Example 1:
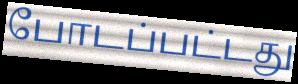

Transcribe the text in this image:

போடப்பட்டது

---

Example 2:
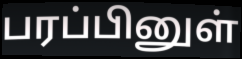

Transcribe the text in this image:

பரப்பினுள்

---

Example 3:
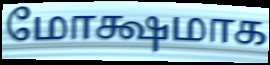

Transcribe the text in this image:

மோக்ஷமாக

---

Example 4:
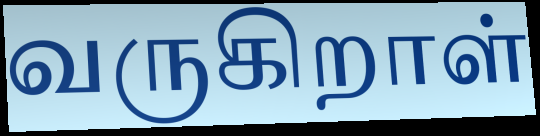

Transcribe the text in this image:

வருகிறாள்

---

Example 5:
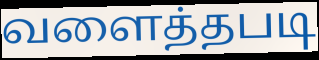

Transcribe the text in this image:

வளைத்தபடி